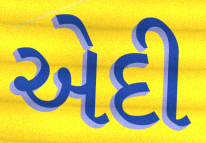
એદી